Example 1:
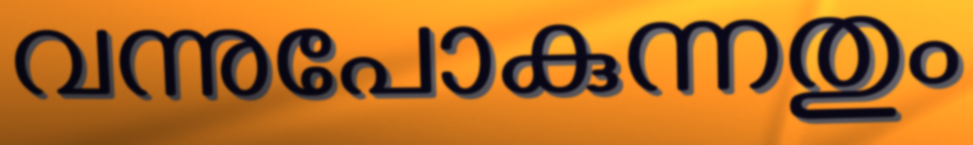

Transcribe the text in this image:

വന്നുപോകുന്നതും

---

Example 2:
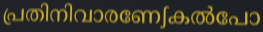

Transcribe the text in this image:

പ്രതിനിവാരണേഽകൽപോ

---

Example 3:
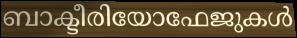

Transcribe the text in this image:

ബാക്ടീരിയോഫേജുകൾ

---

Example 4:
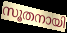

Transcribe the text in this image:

സൂതനായി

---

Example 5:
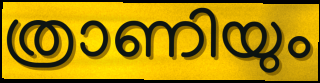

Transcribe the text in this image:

ത്രാണിയും